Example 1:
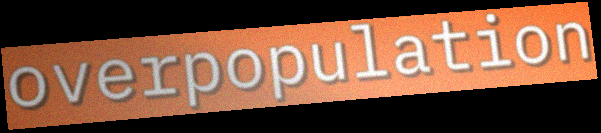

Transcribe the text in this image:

overpopulation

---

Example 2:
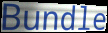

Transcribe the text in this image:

Bundle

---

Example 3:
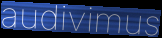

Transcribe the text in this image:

audivimus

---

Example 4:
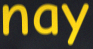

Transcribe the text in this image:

nay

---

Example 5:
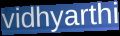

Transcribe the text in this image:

vidhyarthi